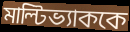
মাল্টিভ্যাককে